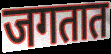
जगतात